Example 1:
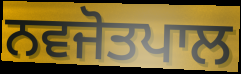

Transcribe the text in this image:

ਨਵਜੋਤਪਾਲ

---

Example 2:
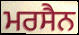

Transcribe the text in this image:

ਮਰਸੈਨ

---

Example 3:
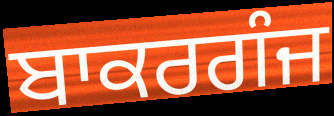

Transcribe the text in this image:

ਬਾਕਰਗੰਜ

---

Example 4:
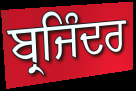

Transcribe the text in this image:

ਬ੍ਰਜਿੰਦਰ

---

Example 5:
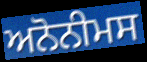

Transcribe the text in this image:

ਅਨੋਨੀਮਸ